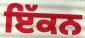
ਇੱਕਨ